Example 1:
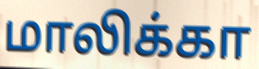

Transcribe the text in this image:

மாலிக்கா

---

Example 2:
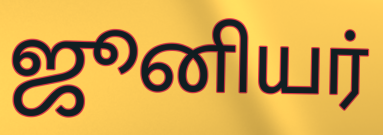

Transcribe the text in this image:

ஜூனியர்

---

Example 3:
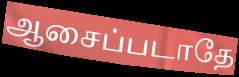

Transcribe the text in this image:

ஆசைப்படாதே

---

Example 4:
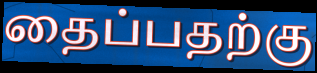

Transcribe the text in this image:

தைப்பதற்கு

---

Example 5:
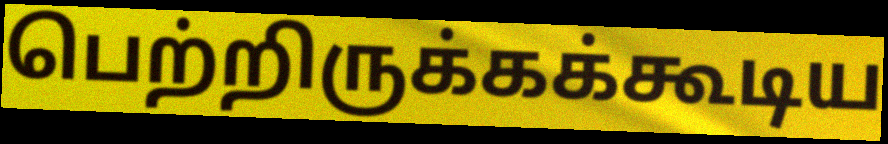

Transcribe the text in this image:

பெற்றிருக்கக்கூடிய